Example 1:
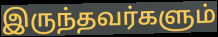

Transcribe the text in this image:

இருந்தவர்களும்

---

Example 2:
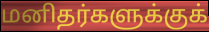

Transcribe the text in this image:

மனிதர்களுக்குக்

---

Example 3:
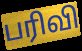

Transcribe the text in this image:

பரிவி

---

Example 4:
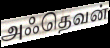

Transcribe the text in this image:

அஃதெவன்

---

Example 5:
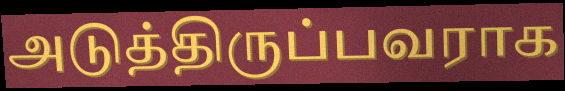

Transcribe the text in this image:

அடுத்திருப்பவராக